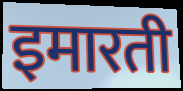
इमारती